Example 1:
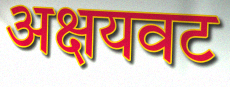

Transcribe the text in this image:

अक्षयवट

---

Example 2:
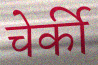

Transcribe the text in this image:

चेर्की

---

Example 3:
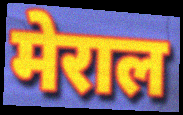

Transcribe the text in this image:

मेराल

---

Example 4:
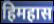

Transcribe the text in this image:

हिमहास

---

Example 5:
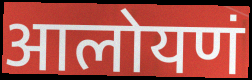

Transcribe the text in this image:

आलोयणं